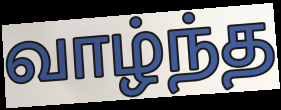
வாழ்ந்த